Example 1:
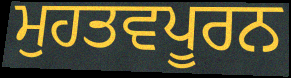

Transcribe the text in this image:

ਮੁਹਤਵਪੂਰਨ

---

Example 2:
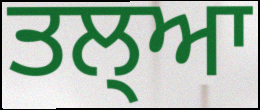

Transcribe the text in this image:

ਤਲ੍ਆ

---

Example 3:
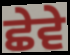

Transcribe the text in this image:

ਛੇਵੇ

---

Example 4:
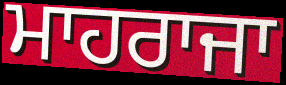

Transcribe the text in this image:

ਮਾਹਰਾਜਾ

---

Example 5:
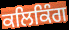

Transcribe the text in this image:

ਕਲਿਕਿੰਗ